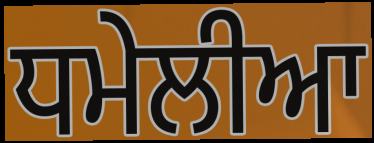
ਧਮੇਲੀਆ